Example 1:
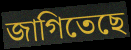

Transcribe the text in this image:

জাগিতেছে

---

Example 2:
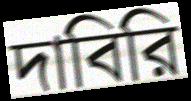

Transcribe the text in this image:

দাবিরি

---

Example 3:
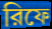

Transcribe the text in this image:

রিফে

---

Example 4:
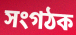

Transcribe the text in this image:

সংগঠক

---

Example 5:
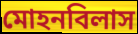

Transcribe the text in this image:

মোহনবিলাস